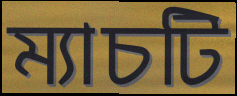
ম্যাচটি